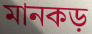
মানকড়